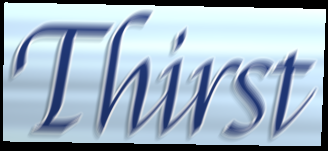
Thirst